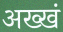
अख्खं